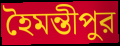
হৈমন্তীপুর